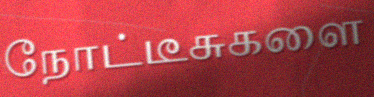
நோட்டீசுகளை